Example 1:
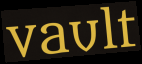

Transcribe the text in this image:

vault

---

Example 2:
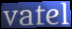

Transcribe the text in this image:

vatel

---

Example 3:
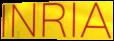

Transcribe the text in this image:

INRIA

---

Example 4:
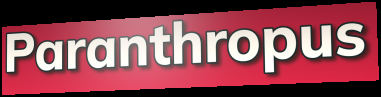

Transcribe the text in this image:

Paranthropus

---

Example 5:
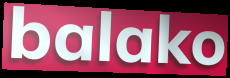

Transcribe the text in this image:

balako